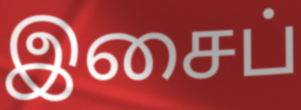
இசைப்